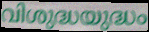
വിശുദ്ധയുദ്ധം